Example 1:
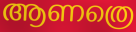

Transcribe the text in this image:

ആണത്രെ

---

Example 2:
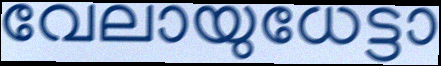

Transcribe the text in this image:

വേലായുധേട്ടാ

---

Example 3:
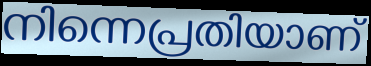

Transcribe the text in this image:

നിന്നെപ്രതിയാണ്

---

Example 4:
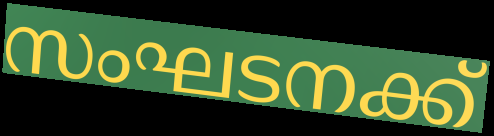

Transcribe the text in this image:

സംഘടനക്ക്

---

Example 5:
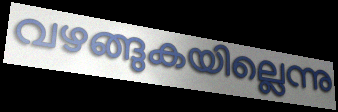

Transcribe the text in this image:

വഴങ്ങുകയില്ലെന്നു